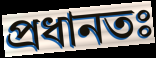
প্রধানতঃ